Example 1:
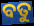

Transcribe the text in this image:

ବତୁ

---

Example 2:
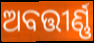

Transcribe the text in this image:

ଅବତ୍ତୀର୍ଣ୍ଣ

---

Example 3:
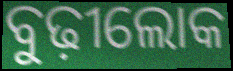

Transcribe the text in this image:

ବୁଢ଼ୀଲୋକ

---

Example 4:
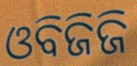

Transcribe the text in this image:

ଓବିଜିଜି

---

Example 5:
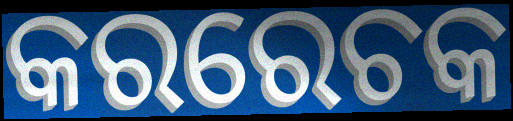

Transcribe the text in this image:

କରରେଚକ